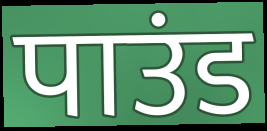
पाउंड